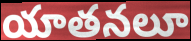
యాతనలూ